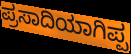
ಪ್ರಸಾದಿಯಾಗಿಪ್ಪ